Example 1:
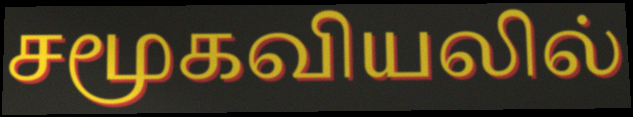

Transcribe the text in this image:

சமூகவியலில்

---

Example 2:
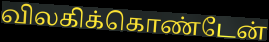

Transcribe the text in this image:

விலகிக்கொண்டேன்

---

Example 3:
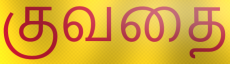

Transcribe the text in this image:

குவதை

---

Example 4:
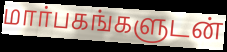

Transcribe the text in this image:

மார்பகங்களுடன்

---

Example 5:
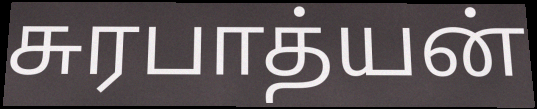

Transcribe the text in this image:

சுரபாத்யன்